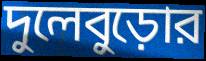
দুলেবুড়োর